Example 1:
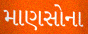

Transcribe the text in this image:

માણસોના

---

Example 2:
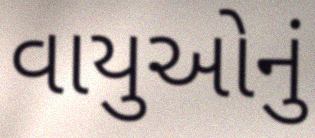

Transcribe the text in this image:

વાયુઓનું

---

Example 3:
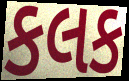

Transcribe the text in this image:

કલક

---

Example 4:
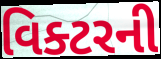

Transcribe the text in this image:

વિક્ટરની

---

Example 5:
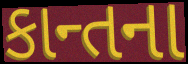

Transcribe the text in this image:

કાન્તના